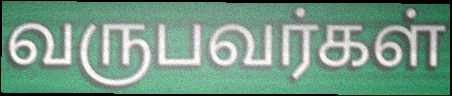
வருபவர்கள்